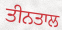
ਤੀਨਤਾਲ